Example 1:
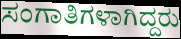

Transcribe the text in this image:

ಸಂಗಾತಿಗಳಾಗಿದ್ದರು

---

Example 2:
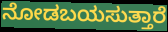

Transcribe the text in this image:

ನೋಡಬಯಸುತ್ತಾರೆ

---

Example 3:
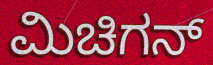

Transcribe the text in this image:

ಮಿಚಿಗನ್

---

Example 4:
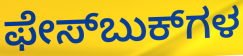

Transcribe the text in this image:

ಫೇಸ್‌ಬುಕ್‌ಗಳ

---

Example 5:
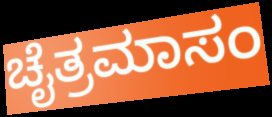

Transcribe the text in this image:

ಚೈತ್ರಮಾಸಂ